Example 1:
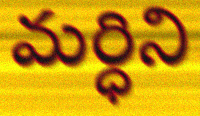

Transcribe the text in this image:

మర్ధిని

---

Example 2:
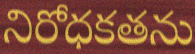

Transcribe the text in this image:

నిరోధకతను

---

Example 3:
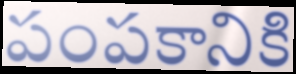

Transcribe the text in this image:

పంపకానికి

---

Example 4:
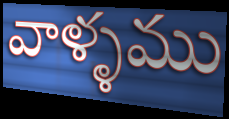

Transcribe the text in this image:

వాళ్ళము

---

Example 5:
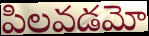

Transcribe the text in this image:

పిలవడమో